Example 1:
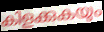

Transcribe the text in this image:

കിളക്കുകയും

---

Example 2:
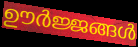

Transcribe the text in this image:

ഊർജ്ജങ്ങൾ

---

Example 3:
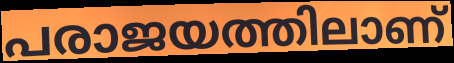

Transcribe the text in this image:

പരാജയത്തിലാണ്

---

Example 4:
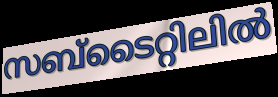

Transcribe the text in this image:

സബ്ടൈറ്റിലിൽ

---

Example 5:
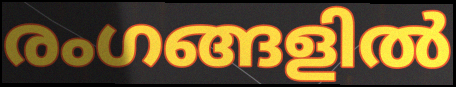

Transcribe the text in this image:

രംഗങ്ങളിൽ